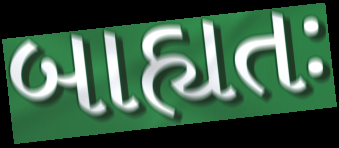
બાહ્યતઃ